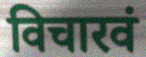
विचारवं